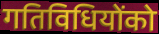
गतिविधियोंको